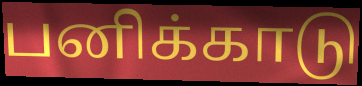
பனிக்காடு